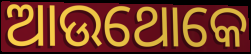
ଆଉଥୋକେ